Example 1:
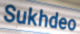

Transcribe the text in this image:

Sukhdeo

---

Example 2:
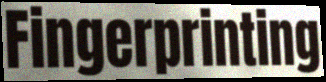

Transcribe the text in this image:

Fingerprinting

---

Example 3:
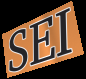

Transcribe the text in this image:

SEI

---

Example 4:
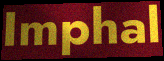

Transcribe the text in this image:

Imphal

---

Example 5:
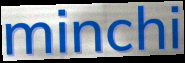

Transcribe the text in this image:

minchi